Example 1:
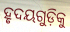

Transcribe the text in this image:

ହୃଦୟଗୁଡ଼ିକୁ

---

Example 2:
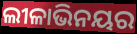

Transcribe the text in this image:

ଲୀଳାଭିନୟର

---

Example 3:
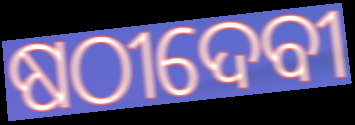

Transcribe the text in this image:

ଷଠୀଦେବୀ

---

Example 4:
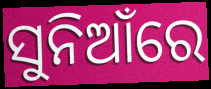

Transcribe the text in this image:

ସୁନିଆଁରେ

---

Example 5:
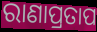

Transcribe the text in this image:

ରାଣାପ୍ରତାପ